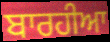
ਬਾਰਹੀਆ